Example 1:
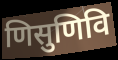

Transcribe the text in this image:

णिसुणिवि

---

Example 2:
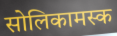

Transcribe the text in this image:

सोलिकामस्क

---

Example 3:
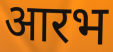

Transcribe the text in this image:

आरभ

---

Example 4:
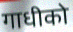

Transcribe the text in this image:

गाधीको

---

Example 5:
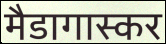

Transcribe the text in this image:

मैडागास्कर